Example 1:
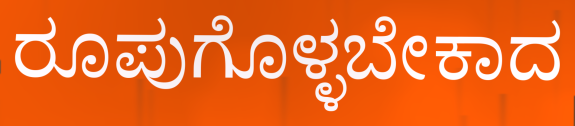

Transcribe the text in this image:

ರೂಪುಗೊಳ್ಳಬೇಕಾದ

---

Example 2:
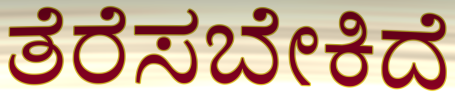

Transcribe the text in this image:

ತೆರೆಸಬೇಕಿದೆ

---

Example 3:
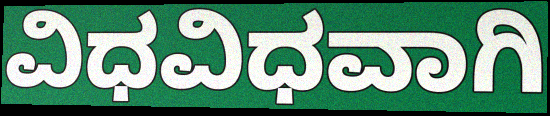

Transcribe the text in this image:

ವಿಧವಿಧವಾಗಿ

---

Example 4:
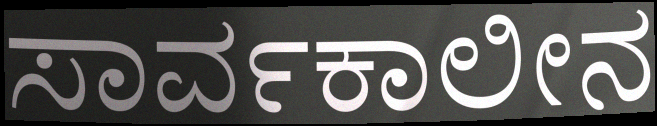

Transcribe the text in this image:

ಸಾರ್ವಕಾಲೀನ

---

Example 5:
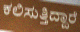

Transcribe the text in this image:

ಕಲಿಸುತ್ತಿದ್ದಾರೆ